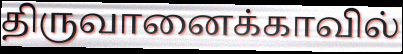
திருவானைக்காவில்